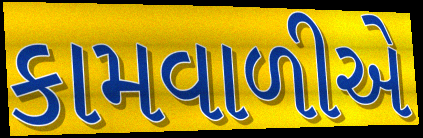
કામવાળીએ